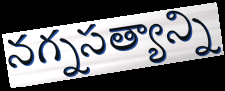
నగ్నసత్యాన్ని